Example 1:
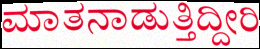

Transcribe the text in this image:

ಮಾತನಾಡುತ್ತಿದ್ದೀರಿ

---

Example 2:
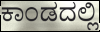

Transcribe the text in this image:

ಕಾಂಡದಲ್ಲಿ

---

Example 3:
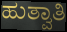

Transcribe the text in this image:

ಹುತ್ವಾತಿ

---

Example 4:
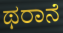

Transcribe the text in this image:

ಥರಾನೆ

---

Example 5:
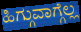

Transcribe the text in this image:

ಹಿಗ್ಗುವಾಗ್ಗೆಲ್ಲ